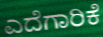
ಎದೆಗಾರಿಕೆ